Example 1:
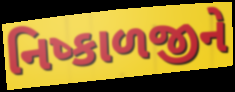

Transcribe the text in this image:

નિષ્કાળજીને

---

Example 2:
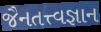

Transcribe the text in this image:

જૈનતત્ત્વજ્ઞાન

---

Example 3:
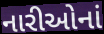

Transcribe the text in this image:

નારીઓનાં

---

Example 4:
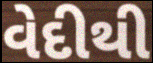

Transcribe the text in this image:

વેદીથી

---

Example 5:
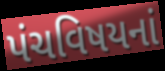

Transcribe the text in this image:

પંચવિષયનાં